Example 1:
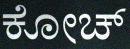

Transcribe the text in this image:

ಕೋಚ್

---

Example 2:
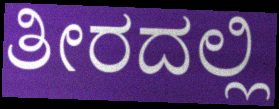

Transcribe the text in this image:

ತೀರದಲ್ಲಿ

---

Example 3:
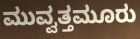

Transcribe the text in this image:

ಮುವ್ವತ್ತಮೂರು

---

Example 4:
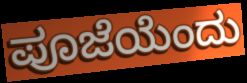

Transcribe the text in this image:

ಪೂಜೆಯೆಂದು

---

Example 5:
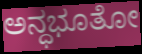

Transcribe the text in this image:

ಅನ್ಧಭೂತೋ